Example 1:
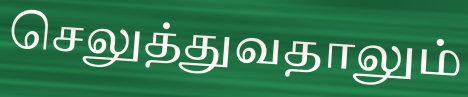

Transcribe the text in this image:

செலுத்துவதாலும்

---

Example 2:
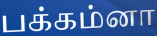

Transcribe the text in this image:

பக்கம்னா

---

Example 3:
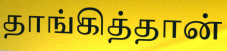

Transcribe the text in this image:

தாங்கித்தான்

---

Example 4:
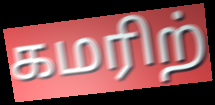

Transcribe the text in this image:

கமரிற்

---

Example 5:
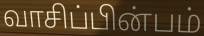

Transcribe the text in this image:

வாசிப்பின்பம்